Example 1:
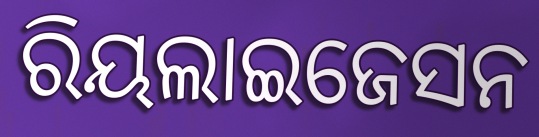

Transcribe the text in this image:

ରିୟଲାଇଜେସନ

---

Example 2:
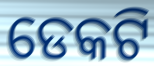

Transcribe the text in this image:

ଡେକଟି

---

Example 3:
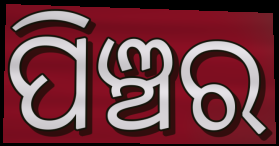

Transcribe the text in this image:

ପିଞ୍ଚର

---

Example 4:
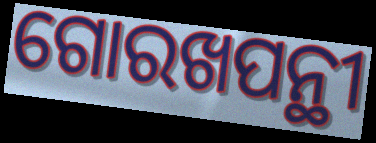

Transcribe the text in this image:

ଗୋରଖପନ୍ଥୀ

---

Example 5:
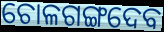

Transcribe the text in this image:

ଚୋଳଗଙ୍ଗଦେବ